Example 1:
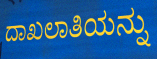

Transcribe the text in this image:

ದಾಖಲಾತಿಯನ್ನು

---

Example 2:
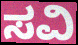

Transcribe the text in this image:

ಸವಿ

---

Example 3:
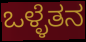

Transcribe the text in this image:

ಒಳ್ಳೆತನ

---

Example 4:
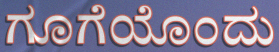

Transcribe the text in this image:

ಗೂಗೆಯೊಂದು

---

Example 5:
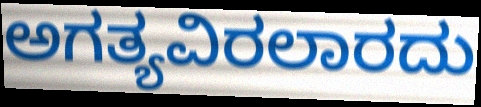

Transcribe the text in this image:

ಅಗತ್ಯವಿರಲಾರದು